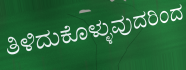
ತಿಳಿದುಕೊಳ್ಳುವುದರಿಂದ